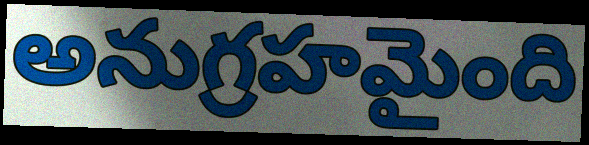
అనుగ్రహమైంది